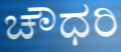
ಚೌಧರಿ